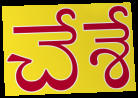
చేశే